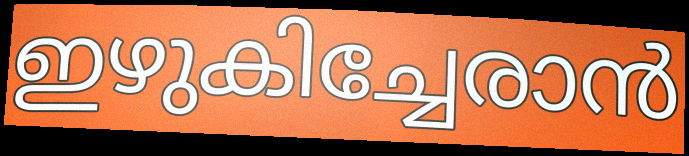
ഇഴുകിച്ചേരാൻ